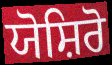
ਯੋਸ਼ਿਰੋ